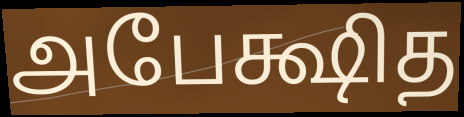
அபேக்ஷித